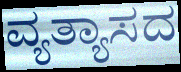
ವ್ಯತ್ಯಾಸದ